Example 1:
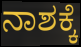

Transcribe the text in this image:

ನಾಶಕ್ಕೆ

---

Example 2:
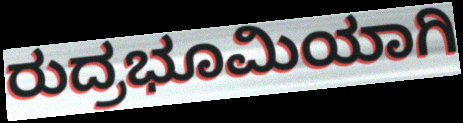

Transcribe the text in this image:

ರುದ್ರಭೂಮಿಯಾಗಿ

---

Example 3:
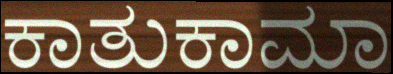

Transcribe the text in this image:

ಕಾತುಕಾಮಾ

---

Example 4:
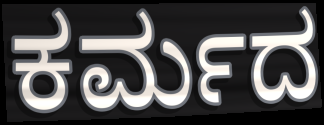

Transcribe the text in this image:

ಕರ್ಮದ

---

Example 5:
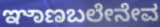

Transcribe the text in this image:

ಞಾಣಬಲೇನೇವ